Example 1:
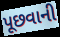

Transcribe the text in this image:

પૂછવાની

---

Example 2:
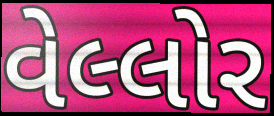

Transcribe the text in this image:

વેલ્લોર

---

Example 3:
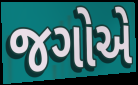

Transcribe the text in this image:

જગોએ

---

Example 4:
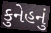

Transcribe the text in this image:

કુનેહનું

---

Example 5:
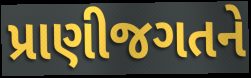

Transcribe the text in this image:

પ્રાણીજગતને